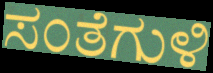
ಸಂತೆಗುಳಿ